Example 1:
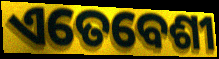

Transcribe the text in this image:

ଏତେବେଶୀ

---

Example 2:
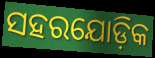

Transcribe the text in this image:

ସହରଯୋଡ଼ିକ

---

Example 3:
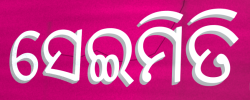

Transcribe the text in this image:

ସେଇମିତି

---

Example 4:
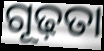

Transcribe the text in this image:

ଗୂଢ଼ତା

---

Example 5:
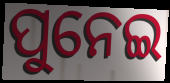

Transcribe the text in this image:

ପୁନେଇ